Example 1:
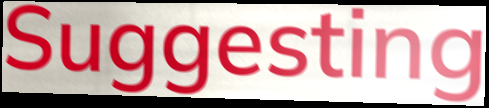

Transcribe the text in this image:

Suggesting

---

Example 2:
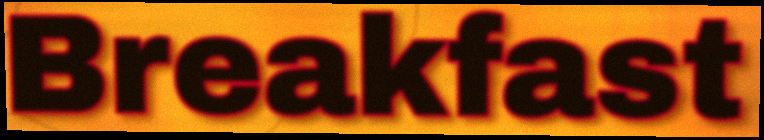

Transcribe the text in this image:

Breakfast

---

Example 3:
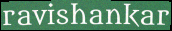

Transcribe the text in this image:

ravishankar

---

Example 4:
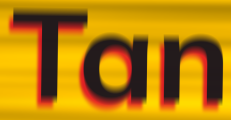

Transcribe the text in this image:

Tan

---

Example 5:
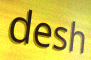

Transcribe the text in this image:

desh